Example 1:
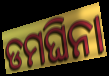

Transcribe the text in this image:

ଡମଘିନା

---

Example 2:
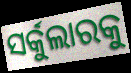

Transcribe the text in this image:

ସର୍କୁଲାରକୁ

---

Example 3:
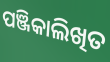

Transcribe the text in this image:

ପଞ୍ଜିକାଲିଖିତ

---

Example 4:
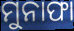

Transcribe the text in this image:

ମୁନାଫା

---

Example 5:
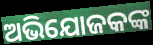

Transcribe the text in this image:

ଅଭିଯୋଜକଙ୍କ